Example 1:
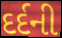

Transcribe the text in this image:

દર્દની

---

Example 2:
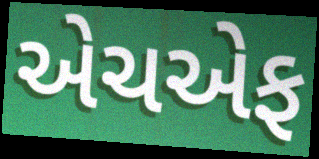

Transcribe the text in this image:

એચએફ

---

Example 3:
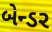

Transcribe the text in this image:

બેન્ડર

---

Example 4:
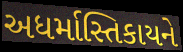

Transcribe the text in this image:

અધર્માસ્તિકાયને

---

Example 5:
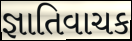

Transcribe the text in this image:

જ્ઞાતિવાચક